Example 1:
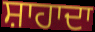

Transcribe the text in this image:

ਸ਼ਾਹਾਦਾ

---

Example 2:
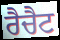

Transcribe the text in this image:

ਰੈਚੈਟ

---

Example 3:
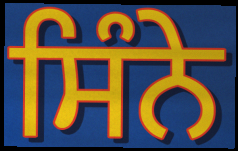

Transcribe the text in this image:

ਸਿੰਨੇ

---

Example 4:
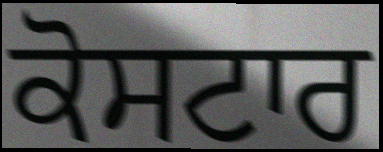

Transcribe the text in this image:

ਕੋਸਟਾਰ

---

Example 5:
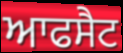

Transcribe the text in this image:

ਆਫਸੈਟ